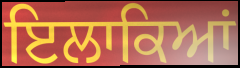
ਇਲਾਕਿਆਂ